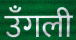
उँगली